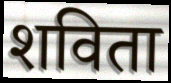
शविता